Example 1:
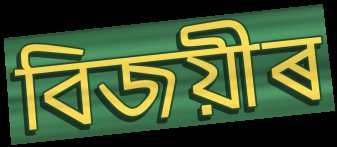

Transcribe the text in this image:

বিজয়ীৰ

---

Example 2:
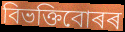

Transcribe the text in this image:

বিভক্তিবোৰৰ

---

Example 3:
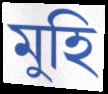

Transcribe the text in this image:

মুহি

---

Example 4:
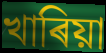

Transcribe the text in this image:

খাৰিয়া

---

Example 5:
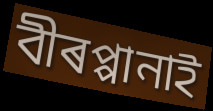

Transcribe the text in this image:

বীৰপ্পানাই